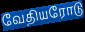
வேதியரோடு